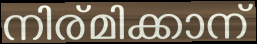
നിര്മിക്കാന്